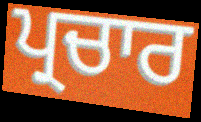
ਪ੍ਰਚਾਰ